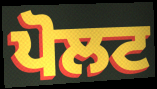
ਪੋਲਟ